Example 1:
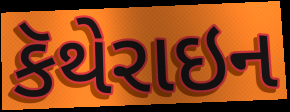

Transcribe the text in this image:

કૅથેરાઇન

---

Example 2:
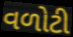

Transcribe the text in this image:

વળોટી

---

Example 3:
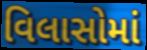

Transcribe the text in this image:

વિલાસોમાં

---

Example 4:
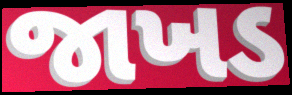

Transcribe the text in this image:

જાખડ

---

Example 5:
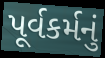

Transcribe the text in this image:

પૂર્વકર્મનું